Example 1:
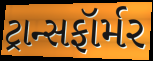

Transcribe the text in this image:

ટ્રાન્સફૉર્મર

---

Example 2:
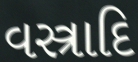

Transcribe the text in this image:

વસ્ત્રાદિ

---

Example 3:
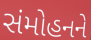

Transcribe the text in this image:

સંમોહનને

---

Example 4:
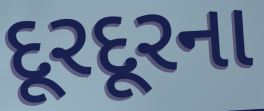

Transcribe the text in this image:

દૂરદૂરના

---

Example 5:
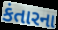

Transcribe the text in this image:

કંતારના